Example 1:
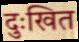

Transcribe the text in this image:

दुःखित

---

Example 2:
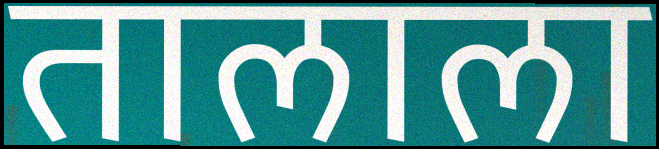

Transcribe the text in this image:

तालाला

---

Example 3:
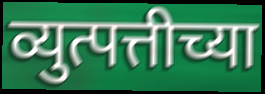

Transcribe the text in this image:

व्युत्पत्तीच्या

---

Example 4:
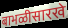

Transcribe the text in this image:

बाभळीसारखे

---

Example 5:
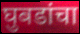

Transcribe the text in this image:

घुबडांचा